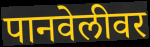
पानवेलीवर